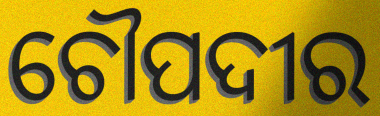
ଚୌପଦୀର